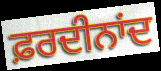
ਫ਼ਰਦੀਨਾਂਦ